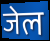
जेल